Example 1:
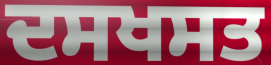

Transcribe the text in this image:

ਦਸਖਸਤ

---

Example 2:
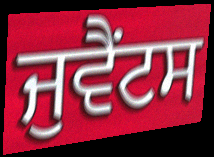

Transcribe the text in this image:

ਜੁਵੈਂਟਸ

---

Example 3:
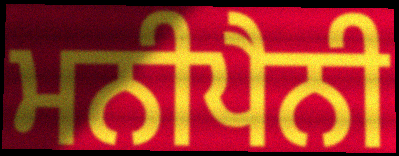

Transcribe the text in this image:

ਮਨੀਪੈਨੀ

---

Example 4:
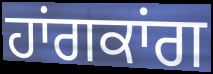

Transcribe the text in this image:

ਹਾਂਗਕਾਂਗ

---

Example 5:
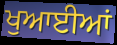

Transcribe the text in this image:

ਖੁਆਈਆਂ